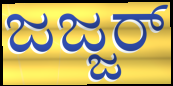
ಜಜ್ಜರ್